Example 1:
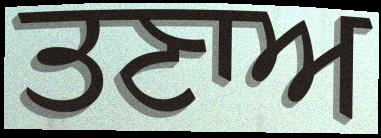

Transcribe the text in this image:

ਤਣਾਅ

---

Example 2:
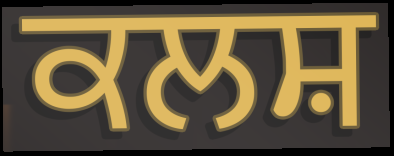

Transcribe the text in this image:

ਕਲਸ਼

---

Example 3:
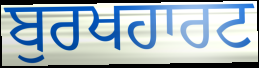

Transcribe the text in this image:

ਬੁਰਖਹਾਰਟ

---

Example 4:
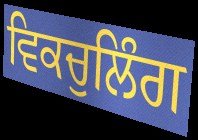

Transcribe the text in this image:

ਵਿਕਚੁਲਿੰਗ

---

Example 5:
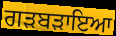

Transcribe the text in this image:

ਗੜਬੜਾਇਆ